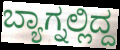
ಬ್ಯಾಗ್ನಲ್ಲಿದ್ದ